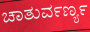
ಚಾತುರ್ವರ್ಣ್ಯ